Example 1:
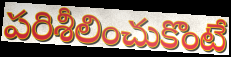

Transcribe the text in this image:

పరిశీలించుకొంటే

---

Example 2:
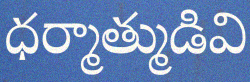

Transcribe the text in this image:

ధర్మాత్ముడివి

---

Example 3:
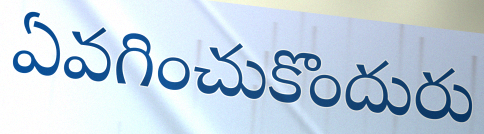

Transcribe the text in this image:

ఏవగించుకొందురు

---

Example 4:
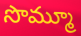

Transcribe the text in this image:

సొమ్మూ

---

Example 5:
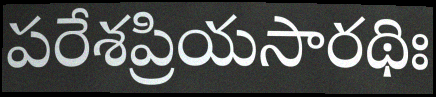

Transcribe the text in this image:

పరేశప్రియసారథిః